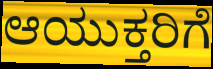
ಆಯುಕ್ತರಿಗೆ